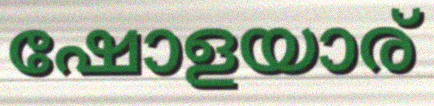
ഷോളയാര്